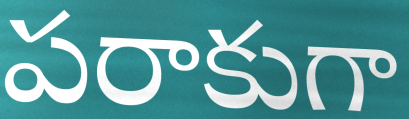
పరాకుగా